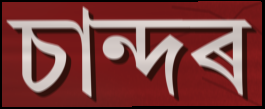
চান্দৰ